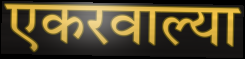
एकरवाल्या